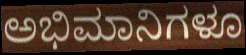
ಅಭಿಮಾನಿಗಳೂ